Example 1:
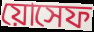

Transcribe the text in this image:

য়োসেফ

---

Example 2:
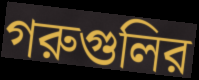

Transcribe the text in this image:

গরুগুলির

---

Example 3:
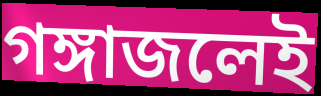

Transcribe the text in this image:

গঙ্গাজলেই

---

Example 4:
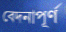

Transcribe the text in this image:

বেদনাপূর্ণ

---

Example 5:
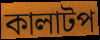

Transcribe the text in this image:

কালাটপ